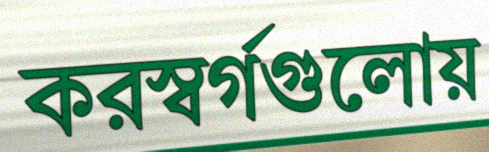
করস্বর্গগুলোয়